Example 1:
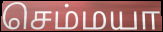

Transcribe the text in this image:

செம்மயா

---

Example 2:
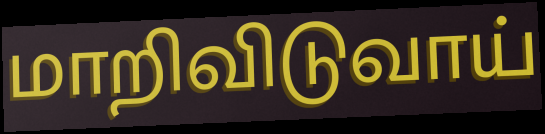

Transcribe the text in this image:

மாறிவிடுவாய்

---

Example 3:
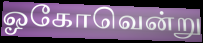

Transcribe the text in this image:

ஓகோவென்று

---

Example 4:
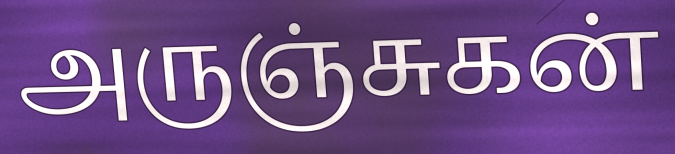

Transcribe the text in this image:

அருஞ்சுகன்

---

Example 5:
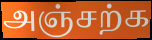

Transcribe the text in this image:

அஞ்சற்க